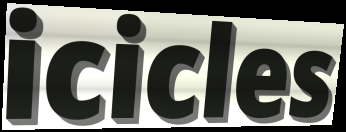
icicles